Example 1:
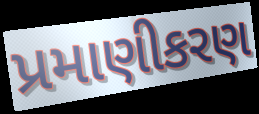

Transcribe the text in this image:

પ્રમાણીકરણ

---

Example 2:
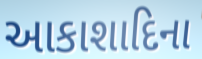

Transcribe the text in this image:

આકાશાદિના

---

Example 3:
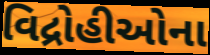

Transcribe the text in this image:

વિદ્રોહીઓના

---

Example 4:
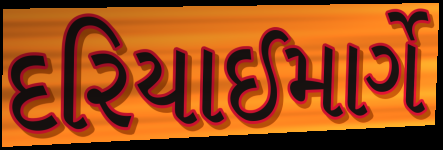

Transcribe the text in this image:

દરિયાઈમાર્ગે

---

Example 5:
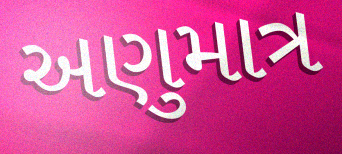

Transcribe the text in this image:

અણુમાત્ર